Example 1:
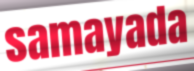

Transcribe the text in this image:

samayada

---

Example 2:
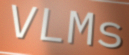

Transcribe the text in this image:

VLMs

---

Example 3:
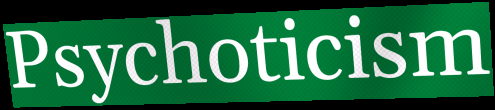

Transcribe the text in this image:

Psychoticism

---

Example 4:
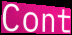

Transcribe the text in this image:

Cont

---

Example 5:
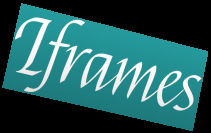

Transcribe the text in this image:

Iframes